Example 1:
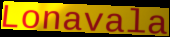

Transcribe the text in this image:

Lonavala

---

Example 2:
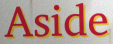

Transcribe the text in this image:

Aside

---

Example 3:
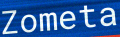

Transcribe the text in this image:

Zometa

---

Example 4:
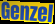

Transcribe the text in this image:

Genzel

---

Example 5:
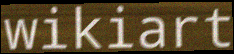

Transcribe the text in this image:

wikiart